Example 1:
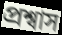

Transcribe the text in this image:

প্রশ্বাস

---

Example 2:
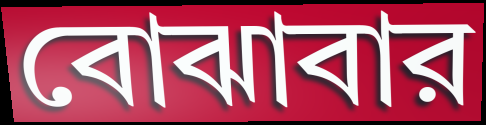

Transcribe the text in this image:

বোঝাবার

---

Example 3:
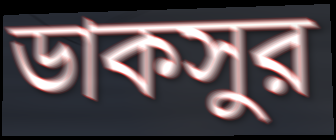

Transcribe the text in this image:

ডাকসুর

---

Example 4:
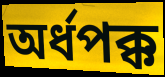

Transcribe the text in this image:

অর্ধপক্ক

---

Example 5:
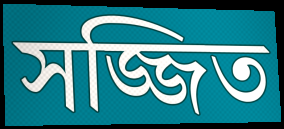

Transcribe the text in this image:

সজ্জিত